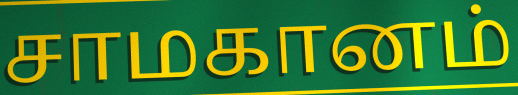
சாமகானம்